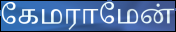
கேமராமேன்